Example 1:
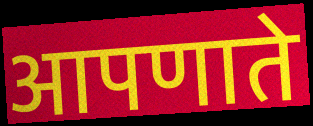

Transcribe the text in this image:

आपणाते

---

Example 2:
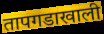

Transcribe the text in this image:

तापगडाखाली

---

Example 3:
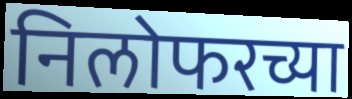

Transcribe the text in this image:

निलोफरच्या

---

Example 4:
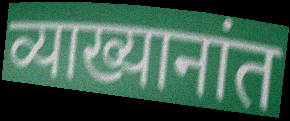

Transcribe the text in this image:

व्याख्यानांत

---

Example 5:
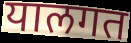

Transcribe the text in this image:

यालगत